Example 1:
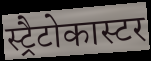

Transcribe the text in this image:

स्ट्रैटोकास्टर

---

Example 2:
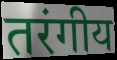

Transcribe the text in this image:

तरंगीय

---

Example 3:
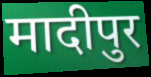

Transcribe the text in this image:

मादीपुर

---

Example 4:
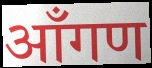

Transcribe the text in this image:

आँगण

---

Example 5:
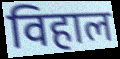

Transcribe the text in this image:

विहाल